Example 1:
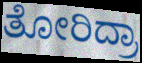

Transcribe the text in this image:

ತೋರಿದ್ರಾ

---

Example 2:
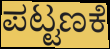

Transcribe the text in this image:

ಪಟ್ಟಣಕೆ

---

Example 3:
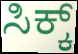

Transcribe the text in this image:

ಸಿಕ್ಕ್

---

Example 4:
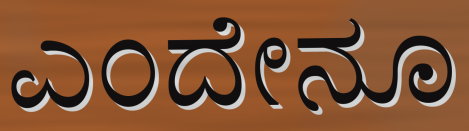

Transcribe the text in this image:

ಎಂದೇನೂ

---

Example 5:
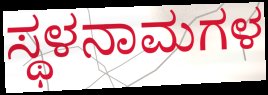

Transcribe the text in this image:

ಸ್ಥಳನಾಮಗಳ